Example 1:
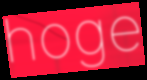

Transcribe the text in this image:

hoge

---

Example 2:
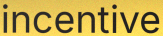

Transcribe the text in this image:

incentive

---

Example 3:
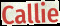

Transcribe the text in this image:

Callie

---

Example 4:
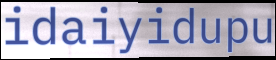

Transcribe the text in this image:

idaiyidupu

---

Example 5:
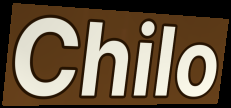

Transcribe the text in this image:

Chilo